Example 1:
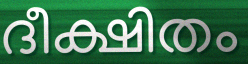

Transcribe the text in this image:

ദീക്ഷിതം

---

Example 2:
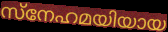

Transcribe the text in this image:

സ്നേഹമയിയായ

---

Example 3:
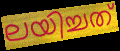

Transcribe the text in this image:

ലയിച്ചത്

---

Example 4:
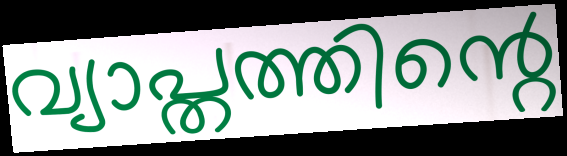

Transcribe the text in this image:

വ്യാപ്തത്തിന്റെ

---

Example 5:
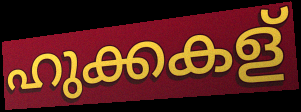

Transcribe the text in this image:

ഹുക്കകള്